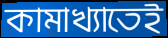
কামাখ্যাতেই